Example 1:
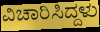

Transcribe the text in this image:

ವಿಚಾರಿಸಿದ್ದಳು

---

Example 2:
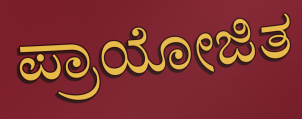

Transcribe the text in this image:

ಪ್ರಾಯೋಜಿತ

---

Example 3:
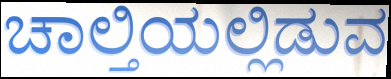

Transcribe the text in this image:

ಚಾಲ್ತಿಯಲ್ಲಿಡುವ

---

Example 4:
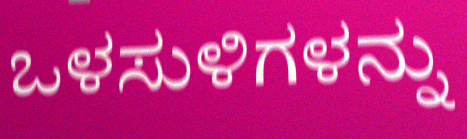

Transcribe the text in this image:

ಒಳಸುಳಿಗಳನ್ನು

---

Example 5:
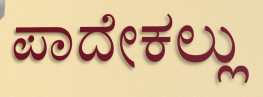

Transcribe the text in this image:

ಪಾದೇಕಲ್ಲು